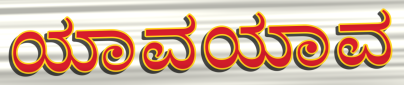
ಯಾವಯಾವ